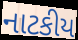
નાટકીય